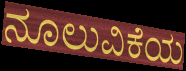
ನೂಲುವಿಕೆಯ